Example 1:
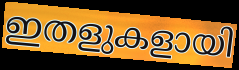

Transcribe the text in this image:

ഇതളുകളായി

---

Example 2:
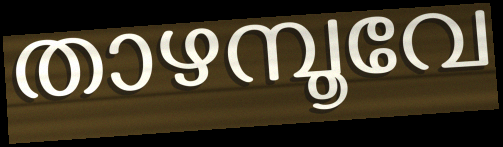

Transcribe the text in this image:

താഴമ്പൂവേ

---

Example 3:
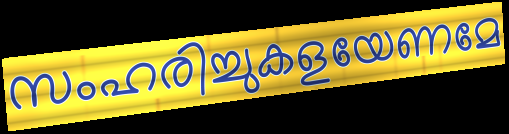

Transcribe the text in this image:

സംഹരിച്ചുകളയേണമേ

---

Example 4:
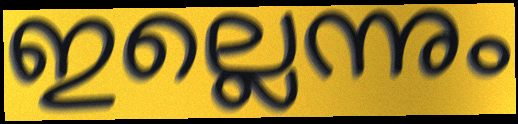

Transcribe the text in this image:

ഇല്ലെന്നും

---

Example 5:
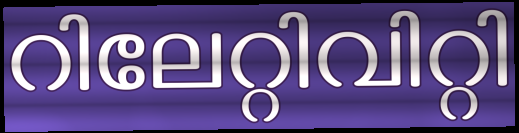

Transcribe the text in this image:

റിലേറ്റിവിറ്റി